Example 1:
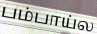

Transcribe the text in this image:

பம்பாய்ல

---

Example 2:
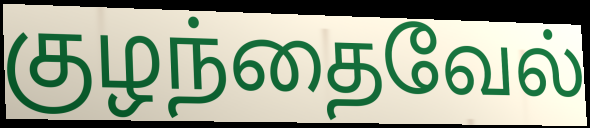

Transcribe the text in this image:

குழந்தைவேல்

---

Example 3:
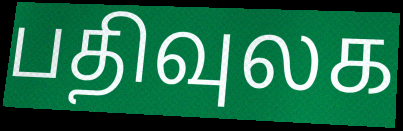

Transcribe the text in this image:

பதிவுலக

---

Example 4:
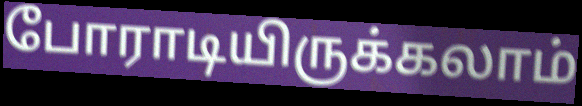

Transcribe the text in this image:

போராடியிருக்கலாம்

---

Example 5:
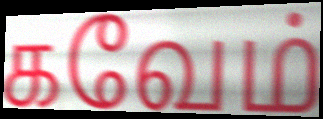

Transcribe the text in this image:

கவேம்